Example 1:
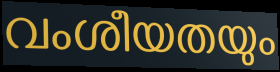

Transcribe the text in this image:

വംശീയതയും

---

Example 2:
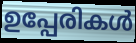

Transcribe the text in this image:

ഉപ്പേരികൾ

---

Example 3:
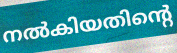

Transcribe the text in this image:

നൽകിയതിന്റെ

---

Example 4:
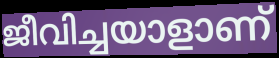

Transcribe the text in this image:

ജീവിച്ചയാളാണ്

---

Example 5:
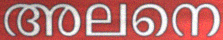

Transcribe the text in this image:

അലനെ